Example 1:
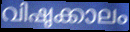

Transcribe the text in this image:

വിഷുക്കാലം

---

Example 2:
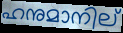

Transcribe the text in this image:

ഹനുമാനില്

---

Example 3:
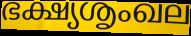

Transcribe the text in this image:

ഭക്ഷ്യശൃംഖല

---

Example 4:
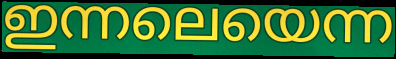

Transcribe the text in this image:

ഇന്നലെയെന്ന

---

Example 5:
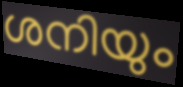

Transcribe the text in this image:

ശനിയും